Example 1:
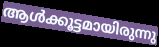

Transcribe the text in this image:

ആൾക്കൂട്ടമായിരുന്നു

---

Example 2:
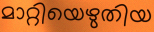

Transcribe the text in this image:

മാറ്റിയെഴുതിയ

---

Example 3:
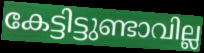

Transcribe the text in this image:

കേട്ടിട്ടുണ്ടാവില്ല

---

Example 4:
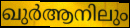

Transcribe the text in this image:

ഖുർആനിലും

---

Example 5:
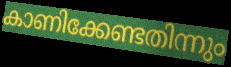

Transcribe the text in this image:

കാണിക്കേണ്ടതിന്നും